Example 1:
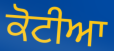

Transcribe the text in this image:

ਕੋਟੀਆ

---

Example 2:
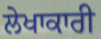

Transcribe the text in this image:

ਲੇਖਾਕਾਰੀ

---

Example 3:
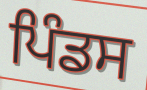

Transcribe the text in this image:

ਪਿੰਡਸ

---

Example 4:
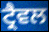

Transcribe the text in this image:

ਟ੍ਰੈਵਲ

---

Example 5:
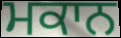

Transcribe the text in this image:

ਮਕਾਨ